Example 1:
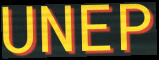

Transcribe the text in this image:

UNEP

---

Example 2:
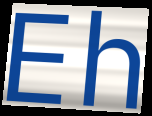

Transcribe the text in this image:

Eh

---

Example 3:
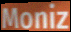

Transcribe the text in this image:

Moniz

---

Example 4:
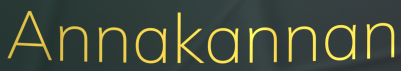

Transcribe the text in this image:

Annakannan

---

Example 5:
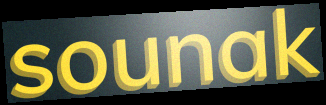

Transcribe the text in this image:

sounak